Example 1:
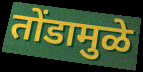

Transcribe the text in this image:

तोंडामुळे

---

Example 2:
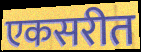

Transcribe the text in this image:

एकसरीत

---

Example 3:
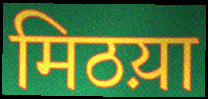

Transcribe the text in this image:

मिठय़ा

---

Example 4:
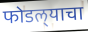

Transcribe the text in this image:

फोडल्याचा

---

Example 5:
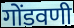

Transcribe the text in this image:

गोंडवणी